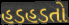
હડહડતો